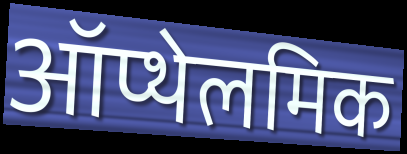
ऑप्थेलमिक